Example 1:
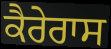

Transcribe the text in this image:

ਕੈਰੇਰਾਸ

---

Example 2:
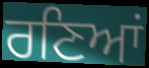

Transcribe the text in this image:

ਰਣਿਆਂ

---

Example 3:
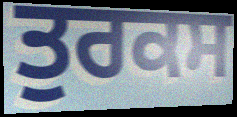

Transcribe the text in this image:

ਤੁਰਕਸ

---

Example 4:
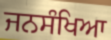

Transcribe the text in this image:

ਜਨਸੰਖਿਆ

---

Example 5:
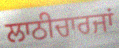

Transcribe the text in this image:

ਲਾਠੀਚਾਰਜਾਂ